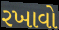
રખાવો